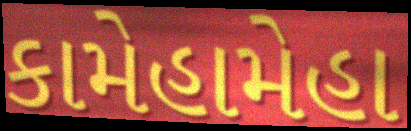
કામેહામેહા